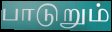
பாடுறும்